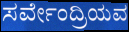
ಸರ್ವೇಂದ್ರಿಯವ